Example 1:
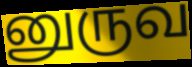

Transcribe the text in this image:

னுருவ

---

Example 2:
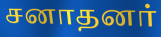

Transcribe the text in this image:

சனாதனர்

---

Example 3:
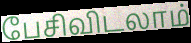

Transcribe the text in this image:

பேசிவிடலாம்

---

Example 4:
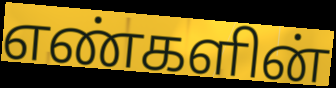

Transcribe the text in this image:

எண்களின்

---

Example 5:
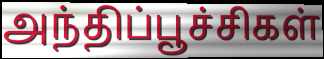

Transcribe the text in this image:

அந்திப்பூச்சிகள்